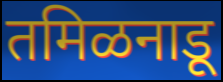
तमिळनाडू